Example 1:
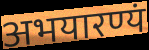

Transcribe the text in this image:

अभयारण्यं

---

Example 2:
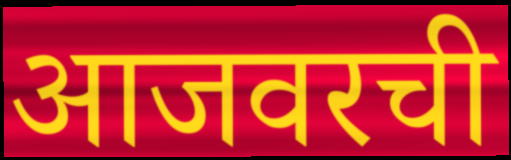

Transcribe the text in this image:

आजवरची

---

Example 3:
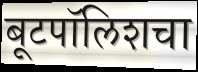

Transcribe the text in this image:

बूटपॉलिशचा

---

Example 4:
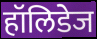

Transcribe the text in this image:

हॉलिडेज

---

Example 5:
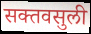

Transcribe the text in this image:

सक्तवसुली